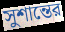
সুশান্তের